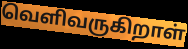
வெளிவருகிறாள்